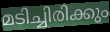
മടിച്ചിരിക്കും